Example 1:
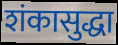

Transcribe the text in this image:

शंकासुद्धा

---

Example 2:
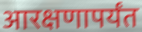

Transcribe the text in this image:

आरक्षणापर्यंत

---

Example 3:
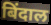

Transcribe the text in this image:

बिंदाल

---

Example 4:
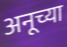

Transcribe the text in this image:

अनूच्या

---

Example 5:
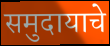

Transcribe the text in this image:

समुदायाचे